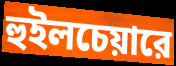
হুইলচেয়ারে